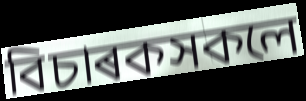
বিচাৰকসকলে